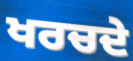
ਖਰਚਦੇ